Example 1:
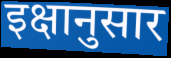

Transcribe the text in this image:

इक्षानुसार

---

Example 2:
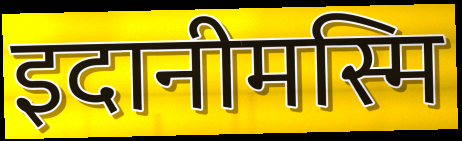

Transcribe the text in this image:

इदानीमस्मि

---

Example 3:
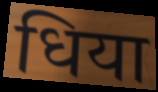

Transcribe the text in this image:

धिया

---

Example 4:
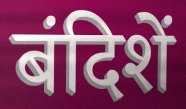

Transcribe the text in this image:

बंदिशें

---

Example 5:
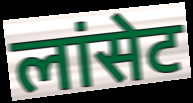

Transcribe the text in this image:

लांसेट